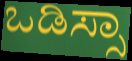
ಒಡಿಸ್ಸಾ